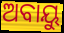
ଅବାୟୁ